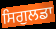
ਸਿਗੁਲਡਾ